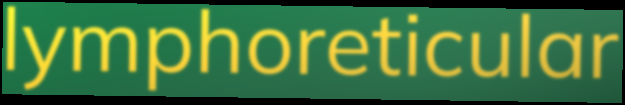
lymphoreticular